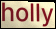
holly